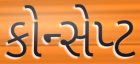
કોન્સેપ્ટ